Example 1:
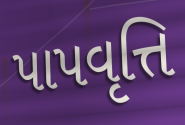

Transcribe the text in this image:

પાપવૃત્તિ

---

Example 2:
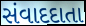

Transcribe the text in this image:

સંવાદદાતા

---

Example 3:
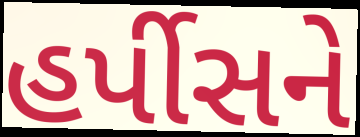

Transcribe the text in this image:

હર્પીસને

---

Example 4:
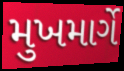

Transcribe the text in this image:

મુખમાર્ગે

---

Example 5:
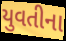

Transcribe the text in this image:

યુવતીના